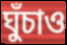
ঘুঁচাও